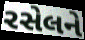
રસેલને